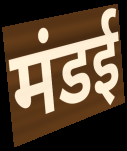
मंडई